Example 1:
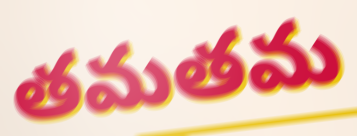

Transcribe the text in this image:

తమతమ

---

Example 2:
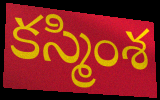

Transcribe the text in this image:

కస్మింశ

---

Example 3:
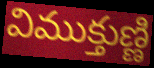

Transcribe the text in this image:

విముక్తుణ్ణి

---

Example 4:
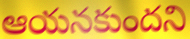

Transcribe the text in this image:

ఆయనకుందని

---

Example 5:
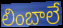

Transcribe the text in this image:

లింబాలే